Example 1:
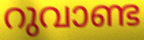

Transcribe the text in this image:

റുവാണ്ട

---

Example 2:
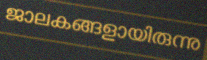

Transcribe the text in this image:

ജാലകങ്ങളായിരുന്നു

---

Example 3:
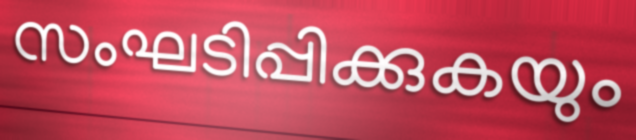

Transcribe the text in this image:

സംഘടിപ്പിക്കുകയും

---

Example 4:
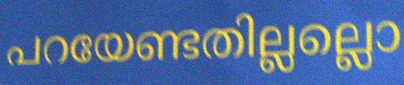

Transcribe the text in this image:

പറയേണ്ടതില്ലല്ലൊ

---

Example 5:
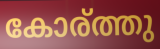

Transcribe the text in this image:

കോര്ത്തു